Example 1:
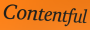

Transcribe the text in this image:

Contentful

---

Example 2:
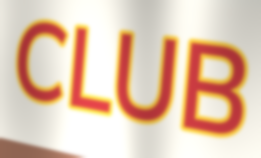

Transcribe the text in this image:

CLUB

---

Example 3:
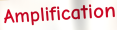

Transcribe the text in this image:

Amplification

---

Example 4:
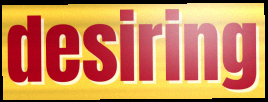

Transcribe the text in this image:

desiring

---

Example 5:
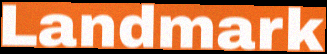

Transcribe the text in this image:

Landmark